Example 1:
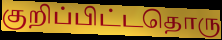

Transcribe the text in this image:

குறிப்பிட்டதொரு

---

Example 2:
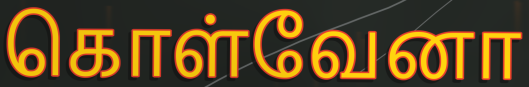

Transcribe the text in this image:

கொள்வேனா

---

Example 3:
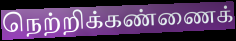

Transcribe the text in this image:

நெற்றிக்கண்ணைக்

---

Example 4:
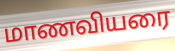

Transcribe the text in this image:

மாணவியரை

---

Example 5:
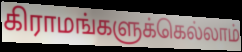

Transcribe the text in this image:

கிராமங்களுக்கெல்லாம்